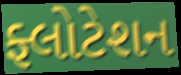
ફ્લોટેશન